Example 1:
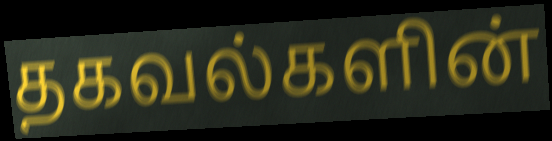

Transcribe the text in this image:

தகவல்களின்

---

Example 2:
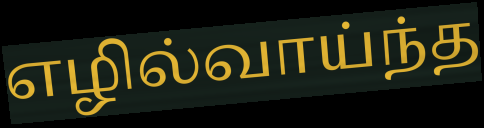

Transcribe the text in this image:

எழில்வாய்ந்த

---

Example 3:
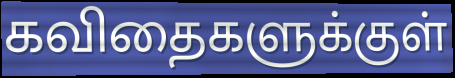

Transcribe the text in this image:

கவிதைகளுக்குள்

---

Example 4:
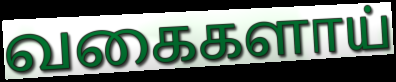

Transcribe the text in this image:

வகைகளாய்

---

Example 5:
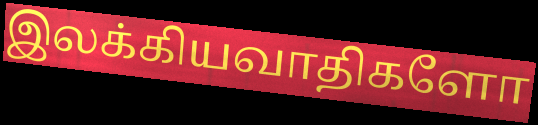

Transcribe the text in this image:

இலக்கியவாதிகளோ